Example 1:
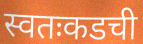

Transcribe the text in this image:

स्वतःकडची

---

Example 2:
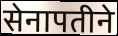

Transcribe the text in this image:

सेनापतीने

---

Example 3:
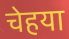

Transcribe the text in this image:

चेहया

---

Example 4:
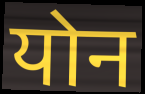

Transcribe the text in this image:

योन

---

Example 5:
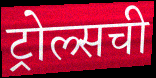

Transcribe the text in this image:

ट्रोल्सची